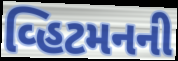
વ્હિટમનની